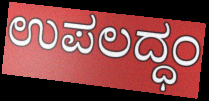
ಉಪಲದ್ಧಂ